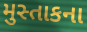
મુસ્તાકના